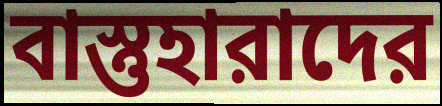
বাস্তুহারাদের